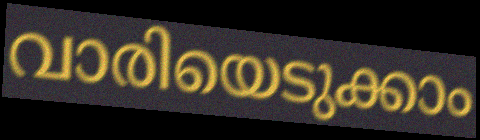
വാരിയെടുക്കാം